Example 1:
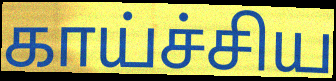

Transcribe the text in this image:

காய்ச்சிய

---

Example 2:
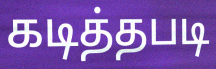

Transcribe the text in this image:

கடித்தபடி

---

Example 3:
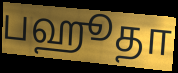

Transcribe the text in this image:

பஹூதா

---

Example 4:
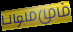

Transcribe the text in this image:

படிமமும்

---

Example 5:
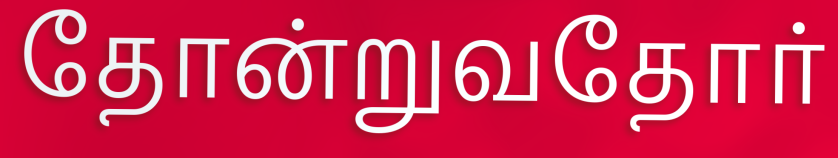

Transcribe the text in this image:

தோன்றுவதோர்